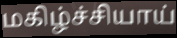
மகிழ்ச்சியாய்